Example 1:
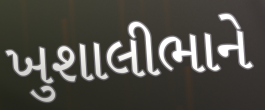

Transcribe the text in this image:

ખુશાલીભાને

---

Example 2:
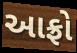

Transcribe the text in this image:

આફ્રો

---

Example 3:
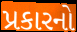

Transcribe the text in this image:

પ્રકારનો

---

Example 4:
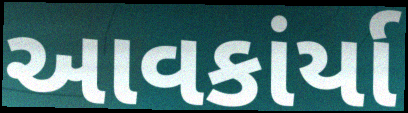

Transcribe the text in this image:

આવકાંર્યા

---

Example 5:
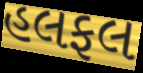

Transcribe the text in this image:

હલફલ